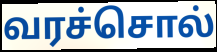
வரச்சொல்